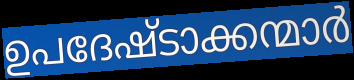
ഉപദേഷ്ടാക്കന്മാർ